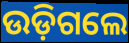
ଉଡ଼ିଗଲେ